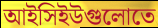
আইসিইউগুলোতে